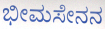
ಭೀಮಸೇನನ